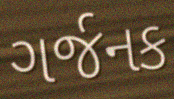
ગર્જનક